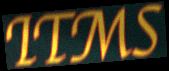
ITMS